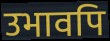
उभावपि